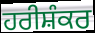
ਹਰੀਸ਼ੰਕਰ